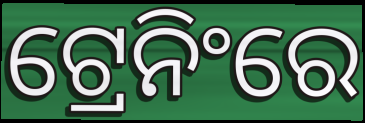
ଟ୍ରେନିଂରେ